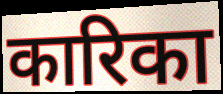
कारिका